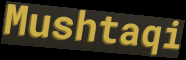
Mushtaqi